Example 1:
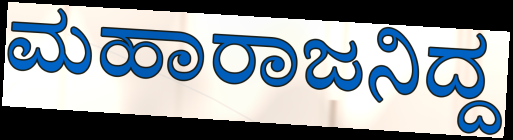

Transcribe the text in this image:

ಮಹಾರಾಜನಿದ್ದ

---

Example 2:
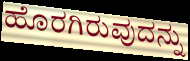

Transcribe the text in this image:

ಹೊರಗಿರುವುದನ್ನು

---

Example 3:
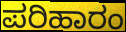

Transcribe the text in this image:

ಪರಿಹಾರಂ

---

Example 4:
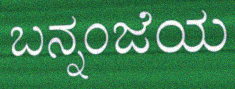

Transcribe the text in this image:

ಬನ್ನಂಜೆಯ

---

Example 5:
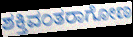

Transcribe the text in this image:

ಶಕ್ತಿವಂತರಾಗೋಣ